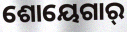
ଶୋୟେଗାର୍